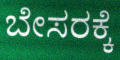
ಬೇಸರಕ್ಕೆ